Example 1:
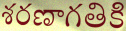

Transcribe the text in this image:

శరణాగతికి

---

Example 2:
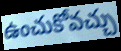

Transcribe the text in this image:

ఉంచుకోవచ్చు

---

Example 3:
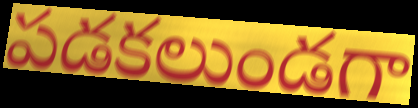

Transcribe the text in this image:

పడకలుండగా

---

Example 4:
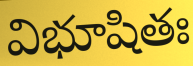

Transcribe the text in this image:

విభూషితః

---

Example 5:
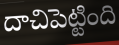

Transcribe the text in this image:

దాచిపెట్టింది